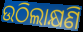
ଉଠିଲାକ୍ଷଣି